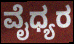
ವೈಧ್ಯರ